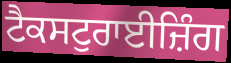
ਟੈਕਸਟੁਰਾਈਜ਼ਿੰਗ